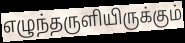
எழுந்தருளியிருக்கும்